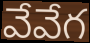
వేవేగ